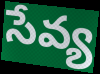
సేవ్య